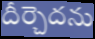
దీర్చెదను